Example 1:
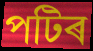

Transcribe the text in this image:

পটিৰ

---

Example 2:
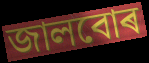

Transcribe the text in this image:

জালবোৰ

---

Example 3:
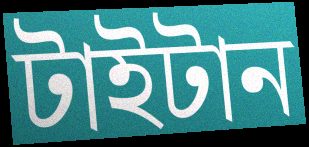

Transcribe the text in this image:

টাইটান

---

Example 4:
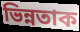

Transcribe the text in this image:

ভিন্নতাক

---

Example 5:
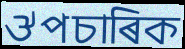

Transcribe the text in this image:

ঔপচাৰিক